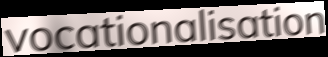
vocationalisation